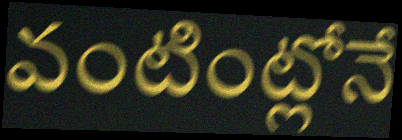
వంటింట్లోనే